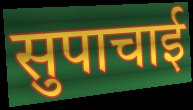
सुपाचाई